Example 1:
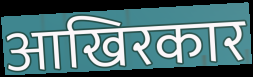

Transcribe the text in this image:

आखिरकार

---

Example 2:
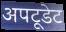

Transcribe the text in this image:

अपटूडेट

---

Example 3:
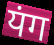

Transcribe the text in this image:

यंग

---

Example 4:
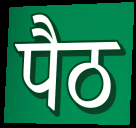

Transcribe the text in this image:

पैठ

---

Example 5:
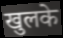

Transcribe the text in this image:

खुलके